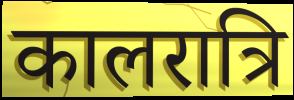
कालरात्रि